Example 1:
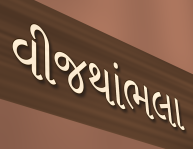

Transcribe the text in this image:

વીજથાંભલા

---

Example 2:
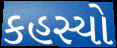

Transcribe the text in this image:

કહસ્યો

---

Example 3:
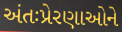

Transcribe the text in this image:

અંતઃપ્રેરણાઓને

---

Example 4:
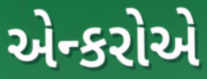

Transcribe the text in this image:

એન્કરોએ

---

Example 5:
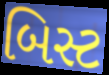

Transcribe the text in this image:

બિસ્ટ